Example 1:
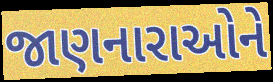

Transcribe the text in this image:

જાણનારાઓને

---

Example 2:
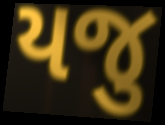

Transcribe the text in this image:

યજુ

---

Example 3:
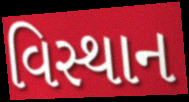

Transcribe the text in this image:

વિસ્થાન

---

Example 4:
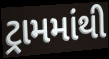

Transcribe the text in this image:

ટ્રામમાંથી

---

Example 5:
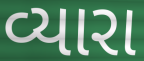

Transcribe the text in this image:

વ્યારા